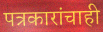
पत्रकारांचाही